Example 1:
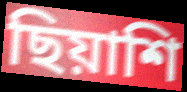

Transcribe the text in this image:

ছিয়াশি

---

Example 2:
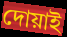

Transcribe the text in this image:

দোয়াই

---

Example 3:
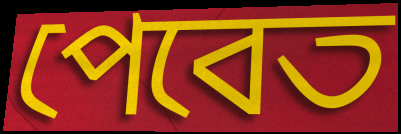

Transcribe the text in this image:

পেবেত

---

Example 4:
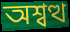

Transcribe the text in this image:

অশ্বত্থ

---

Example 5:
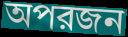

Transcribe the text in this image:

অপরজন